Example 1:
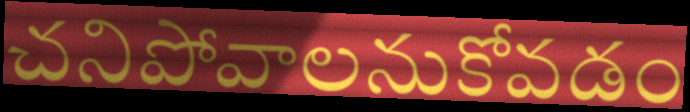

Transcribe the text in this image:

చనిపోవాలనుకోవడం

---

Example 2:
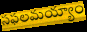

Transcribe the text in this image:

సఫలమయ్యాం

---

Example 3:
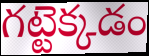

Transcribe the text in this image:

గట్టెక్కడం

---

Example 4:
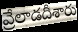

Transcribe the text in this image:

వ్రేలాడదీశారు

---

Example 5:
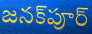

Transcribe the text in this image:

జనక్‌పూర్